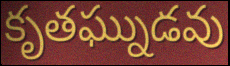
కృతఘ్నుడవు